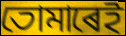
তোমাৰেই